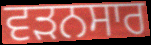
ਵੜਨਸਾਰ